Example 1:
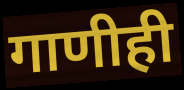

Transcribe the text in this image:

गाणीही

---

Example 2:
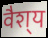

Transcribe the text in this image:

वैश्य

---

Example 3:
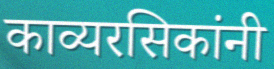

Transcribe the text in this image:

काव्यरसिकांनी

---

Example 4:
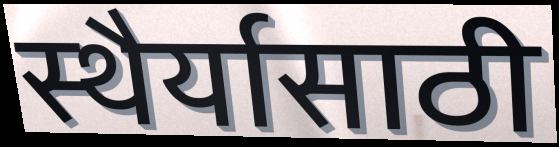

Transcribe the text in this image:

स्थैर्यासाठी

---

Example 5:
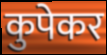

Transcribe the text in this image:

कुपेकर